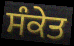
ਸੰਕੇਤ